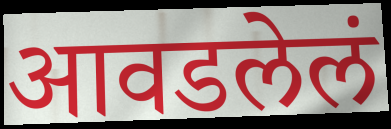
आवडलेलं